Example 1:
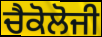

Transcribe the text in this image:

ਚੈਕੋਲੋਜੀ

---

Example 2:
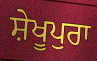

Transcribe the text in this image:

ਸ਼ੇਖੂਪੁਰਾ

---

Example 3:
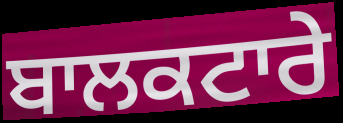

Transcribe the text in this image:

ਬਾਲਕਟਾਰੇ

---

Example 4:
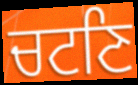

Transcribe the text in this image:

ਚਟਣਿ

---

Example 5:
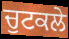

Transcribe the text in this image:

ਚੁਟਕਲੇ